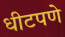
धीटपणे